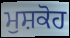
ਮੁਸ਼ਕੋਹ